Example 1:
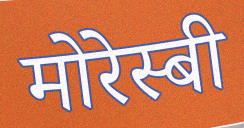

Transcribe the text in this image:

मोरेस्बी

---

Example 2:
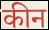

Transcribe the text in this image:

कीन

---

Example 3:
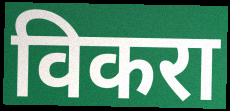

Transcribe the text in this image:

विकरा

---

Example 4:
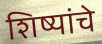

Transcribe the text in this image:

शिष्यांचे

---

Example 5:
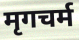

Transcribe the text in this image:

मृगचर्म